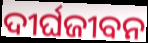
ଦୀର୍ଘଜୀବନ